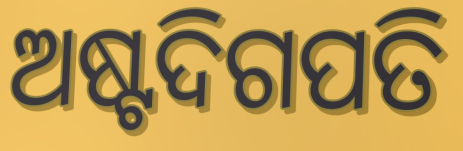
ଅଷ୍ଟଦିଗପତି